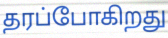
தரப்போகிறது